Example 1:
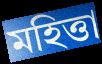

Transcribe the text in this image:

মহিত্তা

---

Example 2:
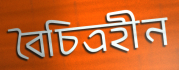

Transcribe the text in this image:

বৈচিত্রহীন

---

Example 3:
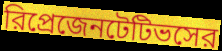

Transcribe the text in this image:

রিপ্রেজেনটেটিভসের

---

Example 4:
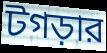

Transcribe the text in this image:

টগড়ার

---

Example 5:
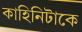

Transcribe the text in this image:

কাহিনিটাকে